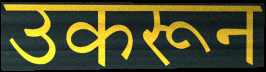
उकरून